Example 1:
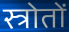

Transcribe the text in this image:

स्त्रोतों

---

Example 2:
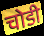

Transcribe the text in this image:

चोडी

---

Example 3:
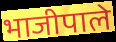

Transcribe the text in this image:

भाजीपाले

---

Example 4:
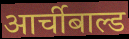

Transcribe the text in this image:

आर्चीबाल्ड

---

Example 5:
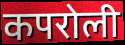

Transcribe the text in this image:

कपरोली